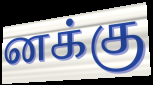
னக்கு